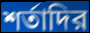
শর্তাদির